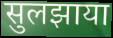
सुलझाया